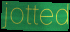
jotted